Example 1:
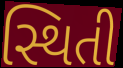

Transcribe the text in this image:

સ્થિતી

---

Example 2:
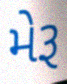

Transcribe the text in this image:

મેરૂ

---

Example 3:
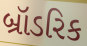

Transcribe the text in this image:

બ્રૉડરિક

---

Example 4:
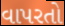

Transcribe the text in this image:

વાપરતો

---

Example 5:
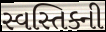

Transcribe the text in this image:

સ્વસ્તિક્ની